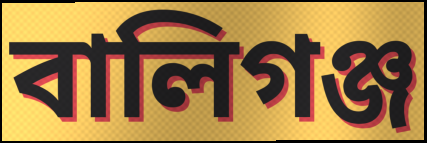
বালিগঞ্জ